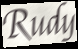
Rudy